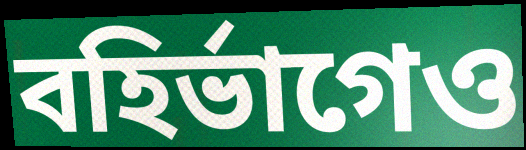
বহির্ভাগেও